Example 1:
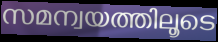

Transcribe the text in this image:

സമന്വയത്തിലൂടെ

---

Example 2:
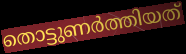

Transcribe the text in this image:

തൊട്ടുണർത്തിയത്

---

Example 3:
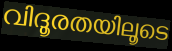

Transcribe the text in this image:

വിദൂരതയിലൂടെ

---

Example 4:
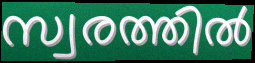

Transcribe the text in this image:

സ്വരത്തിൽ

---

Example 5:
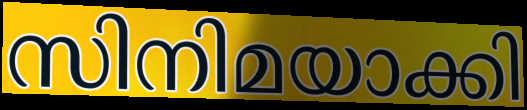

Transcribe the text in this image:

സിനിമയാക്കി